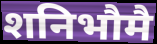
शनिभौमै